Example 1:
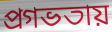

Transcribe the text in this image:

প্রগভতায়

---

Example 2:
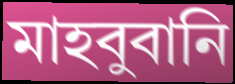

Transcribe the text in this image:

মাহবুবানি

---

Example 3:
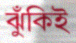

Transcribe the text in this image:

ঝুঁকিই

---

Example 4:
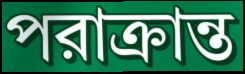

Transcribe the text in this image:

পরাক্রান্ত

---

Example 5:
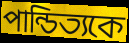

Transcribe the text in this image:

পান্ডিত্যকে